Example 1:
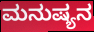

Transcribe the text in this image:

ಮನುಷ್ಯನ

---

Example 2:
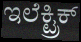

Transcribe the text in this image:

ಇಲೆಕ್ಟ್ರಿಕ್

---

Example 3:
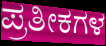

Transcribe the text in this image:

ಪ್ರತೀಕಗಳ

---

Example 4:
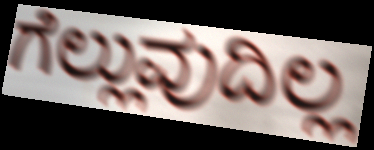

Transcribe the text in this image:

ಗೆಲ್ಲುವುದಿಲ್ಲ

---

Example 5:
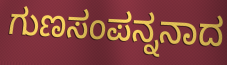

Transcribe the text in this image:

ಗುಣಸಂಪನ್ನನಾದ